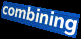
combining